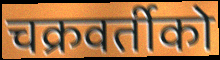
चक्रवर्तीको